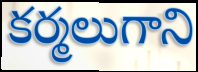
కర్మలుగాని